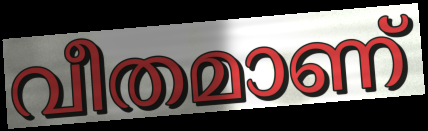
വീതമാണ്